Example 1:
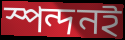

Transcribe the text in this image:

স্পন্দনই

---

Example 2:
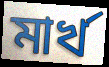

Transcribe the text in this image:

মার্খ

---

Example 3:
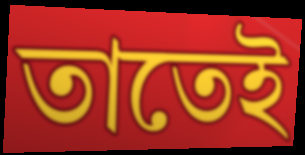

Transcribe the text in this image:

তাতেই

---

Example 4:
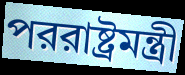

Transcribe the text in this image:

পররাষ্ট্রমন্ত্রী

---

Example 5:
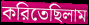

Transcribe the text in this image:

করিতেছিলাম